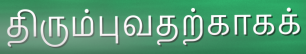
திரும்புவதற்காகக்